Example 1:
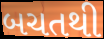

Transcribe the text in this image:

બચતથી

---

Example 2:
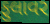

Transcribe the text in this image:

ફુલાવર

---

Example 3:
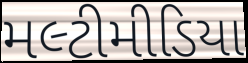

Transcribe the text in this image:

મલ્ટીમીડિયા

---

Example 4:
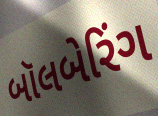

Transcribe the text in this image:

બૉલબેરિંગ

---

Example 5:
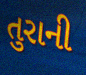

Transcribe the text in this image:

તુરાની